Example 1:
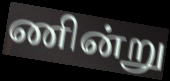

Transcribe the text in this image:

ணின்று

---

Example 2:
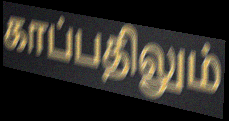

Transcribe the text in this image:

காப்பதிலும்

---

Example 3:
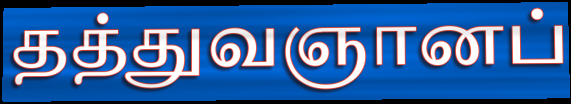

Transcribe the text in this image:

தத்துவஞானப்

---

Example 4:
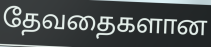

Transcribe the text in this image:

தேவதைகளான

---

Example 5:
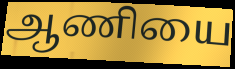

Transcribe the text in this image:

ஆணியை